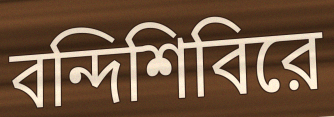
বন্দিশিবিরে